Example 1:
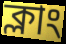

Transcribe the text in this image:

ক্লাং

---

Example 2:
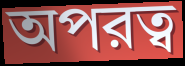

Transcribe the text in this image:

অপরত্ব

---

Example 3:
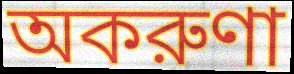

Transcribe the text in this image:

অকরুণা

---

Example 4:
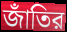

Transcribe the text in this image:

জাঁতির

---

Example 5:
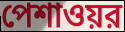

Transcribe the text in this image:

পেশাওয়র